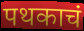
पथकाचं